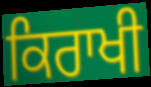
ਕਿਰਾਖੀ